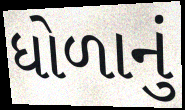
ધોળાનું